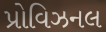
પ્રોવિઝનલ